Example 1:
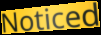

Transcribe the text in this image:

Noticed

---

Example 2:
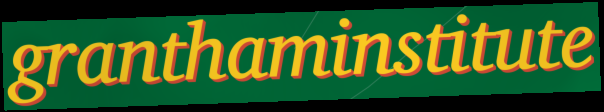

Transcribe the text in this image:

granthaminstitute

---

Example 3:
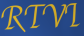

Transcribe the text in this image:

RTVI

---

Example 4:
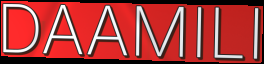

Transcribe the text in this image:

DAAMILI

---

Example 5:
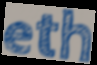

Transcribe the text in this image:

eth